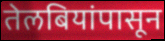
तेलबियांपासून